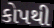
કોપથી